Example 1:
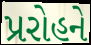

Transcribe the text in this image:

પ્રરોહને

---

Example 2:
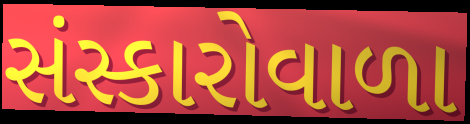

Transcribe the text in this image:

સંસ્કારોવાળા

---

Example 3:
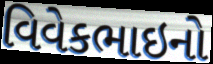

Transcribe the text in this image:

વિવેકભાઇનો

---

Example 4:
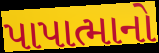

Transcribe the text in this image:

પાપાત્માનો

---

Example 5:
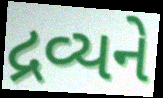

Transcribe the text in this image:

દ્રવ્યને